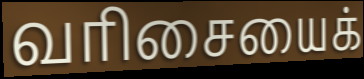
வரிசையைக்